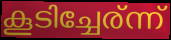
കൂടിച്ചേര്ന്ന്